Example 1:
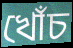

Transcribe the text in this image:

খোঁচ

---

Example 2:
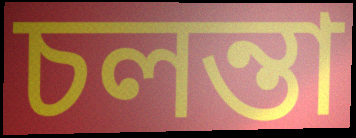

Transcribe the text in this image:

চলন্তা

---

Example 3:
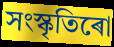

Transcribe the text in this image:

সংস্কৃতিৰো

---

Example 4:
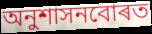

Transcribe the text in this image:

অনুশাসনবোৰত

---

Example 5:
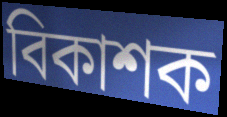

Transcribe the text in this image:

বিকাশক